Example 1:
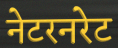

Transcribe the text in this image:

नेटरनरेट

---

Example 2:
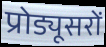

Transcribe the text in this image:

प्रोड्यूसरों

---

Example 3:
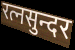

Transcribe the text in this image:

रत्नसुन्दर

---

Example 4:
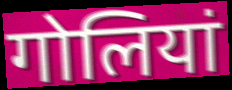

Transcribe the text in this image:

गोलियां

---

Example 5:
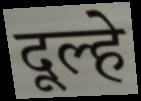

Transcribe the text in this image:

दूल्हे